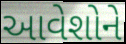
આવેશોને